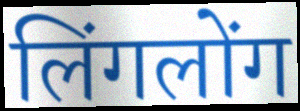
लिंगलोंग